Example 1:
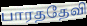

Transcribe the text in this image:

பாரததேவி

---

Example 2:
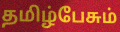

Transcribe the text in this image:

தமிழ்பேசும்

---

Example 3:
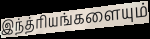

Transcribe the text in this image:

இந்த்ரியங்களையும்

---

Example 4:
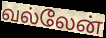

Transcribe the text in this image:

வல்லேன்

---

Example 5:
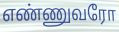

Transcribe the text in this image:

எண்ணுவரோ